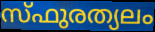
സ്ഫുരത്യലം